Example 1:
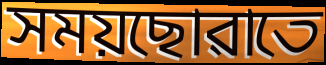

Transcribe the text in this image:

সময়ছোৱাতে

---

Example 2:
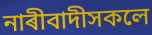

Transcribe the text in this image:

নাৰীবাদীসকলে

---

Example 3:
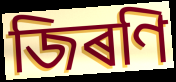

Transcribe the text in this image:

জিৰণি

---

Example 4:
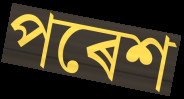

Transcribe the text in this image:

পৰেশ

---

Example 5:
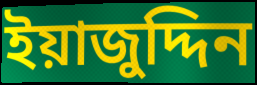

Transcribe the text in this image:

ইয়াজুদ্দিন